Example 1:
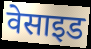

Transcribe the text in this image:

वेसाइड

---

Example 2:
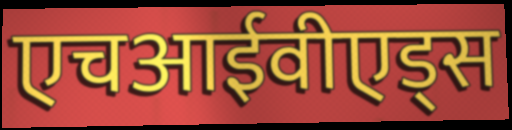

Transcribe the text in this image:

एचआईवीएड्स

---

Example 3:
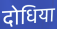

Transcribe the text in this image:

दोधिया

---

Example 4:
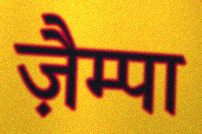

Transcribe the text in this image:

ज़ैम्पा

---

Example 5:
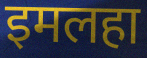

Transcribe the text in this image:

इमलहा